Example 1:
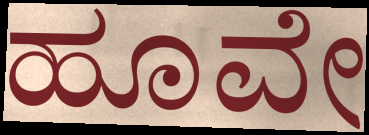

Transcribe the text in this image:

ಹೂವೇ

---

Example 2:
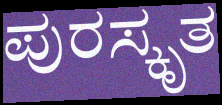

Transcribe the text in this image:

ಪುರಸ್ಕೃತ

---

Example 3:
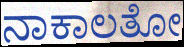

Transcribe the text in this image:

ನಾಕಾಲತೋ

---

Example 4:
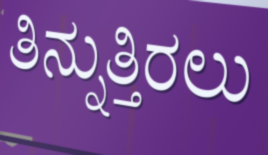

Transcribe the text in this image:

ತಿನ್ನುತ್ತಿರಲು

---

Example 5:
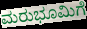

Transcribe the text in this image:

ಮರುಭೂಮಿಗೆ